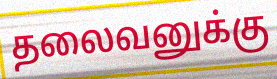
தலைவனுக்கு